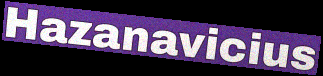
Hazanavicius